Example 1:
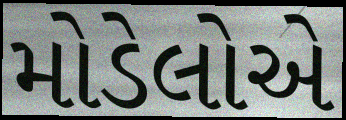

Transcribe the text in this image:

મોડેલોએ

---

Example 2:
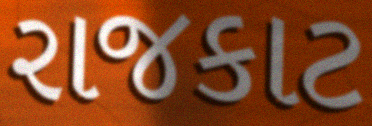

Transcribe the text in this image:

રાજકાટ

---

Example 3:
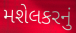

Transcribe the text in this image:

મશેલકરનું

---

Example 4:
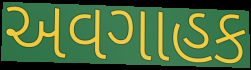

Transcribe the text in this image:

અવગાહક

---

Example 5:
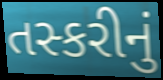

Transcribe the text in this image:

તસ્કરીનું